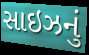
સાઇઝનું